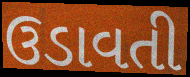
ઉડાવતી